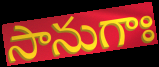
సానుగాః